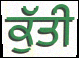
ਕੁੱਤੀ